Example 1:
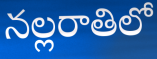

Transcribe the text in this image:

నల్లరాతిలో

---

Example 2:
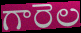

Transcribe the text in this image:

గారెల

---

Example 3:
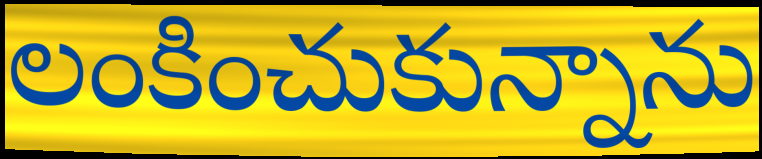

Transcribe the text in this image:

లంకించుకున్నాను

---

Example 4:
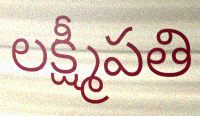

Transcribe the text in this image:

లక్ష్మీపతి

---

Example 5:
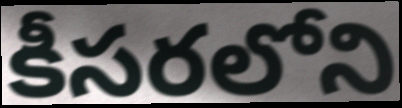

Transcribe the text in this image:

కీసరలోని